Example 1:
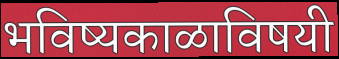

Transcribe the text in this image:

भविष्यकाळाविषयी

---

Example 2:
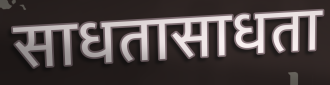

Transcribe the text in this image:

साधतासाधता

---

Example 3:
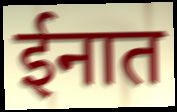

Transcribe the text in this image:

ईनात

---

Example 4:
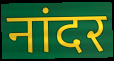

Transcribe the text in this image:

नांदर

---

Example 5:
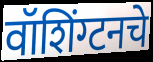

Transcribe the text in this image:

वॉशिंग्टनचे